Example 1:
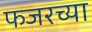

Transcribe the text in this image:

फजरच्या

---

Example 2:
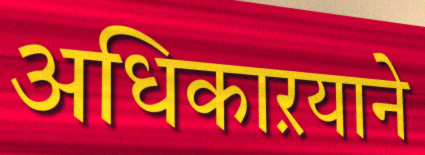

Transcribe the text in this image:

अधिकाऱयाने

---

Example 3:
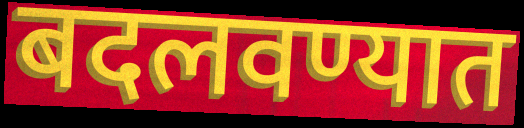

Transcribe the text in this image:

बदलवण्यात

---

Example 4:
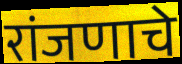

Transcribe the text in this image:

रांजणाचे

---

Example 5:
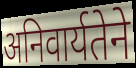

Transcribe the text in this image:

अनिवार्यतेने